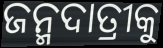
ଜନ୍ମଦାତ୍ରୀକୁ